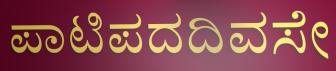
ಪಾಟಿಪದದಿವಸೇ